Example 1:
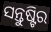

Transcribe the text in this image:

ସନ୍ତୁଷ୍ଟିର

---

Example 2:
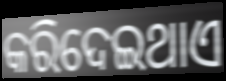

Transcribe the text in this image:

କରିଦେଇଥାଏ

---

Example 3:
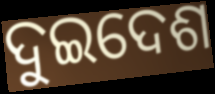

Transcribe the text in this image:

ଦୁଇଦେଶ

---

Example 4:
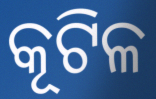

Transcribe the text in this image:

କୂଟିଳ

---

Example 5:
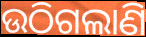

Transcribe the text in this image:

ଉଠିଗଲାଣି